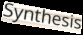
Synthesis